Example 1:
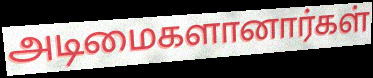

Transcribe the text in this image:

அடிமைகளானார்கள்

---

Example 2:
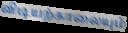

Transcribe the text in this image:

விடியற்காலையும்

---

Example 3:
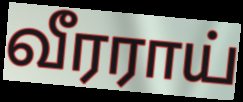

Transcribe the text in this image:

வீரராய்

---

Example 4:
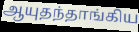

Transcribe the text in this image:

ஆயுதந்தாங்கிய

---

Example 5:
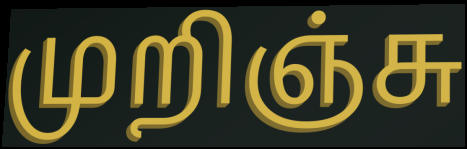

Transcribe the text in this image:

முறிஞ்சு